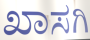
ಖಾಸಗಿ